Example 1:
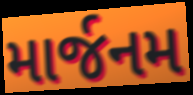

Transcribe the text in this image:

માર્જનમ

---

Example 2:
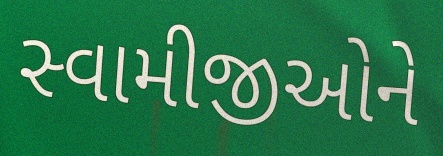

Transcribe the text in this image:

સ્વામીજીઓને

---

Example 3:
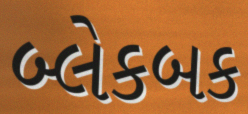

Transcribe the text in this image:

બ્લેકબક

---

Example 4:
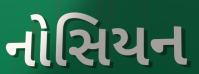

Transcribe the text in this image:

નોસિયન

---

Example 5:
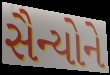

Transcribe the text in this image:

સૈન્યોને